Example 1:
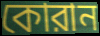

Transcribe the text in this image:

কোরান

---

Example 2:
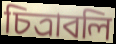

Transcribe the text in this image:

চিত্রাবলি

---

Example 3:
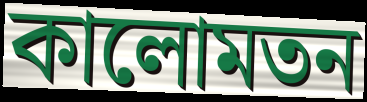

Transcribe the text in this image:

কালোমতন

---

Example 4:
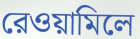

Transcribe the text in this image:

রেওয়ামিলে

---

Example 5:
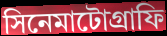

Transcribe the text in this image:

সিনেমাটোগ্রাফি